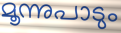
മൂന്നുപാടും